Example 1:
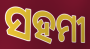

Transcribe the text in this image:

ସହମୀ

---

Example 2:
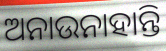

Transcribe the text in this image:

ଅନାଉନାହାନ୍ତି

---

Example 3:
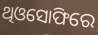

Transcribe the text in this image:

ଥିଓସୋଫିରେ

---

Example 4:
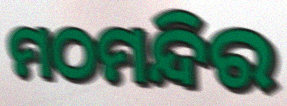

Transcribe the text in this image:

ମଠମନ୍ଦିର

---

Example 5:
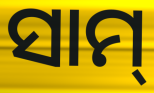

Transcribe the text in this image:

ସାମ୍